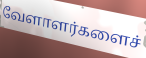
வேளாளர்களைச்